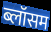
ब्लॉसम